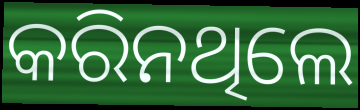
କରିନଥିଲେ